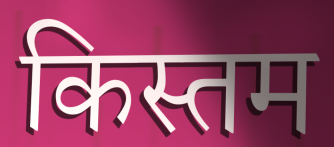
किस्तम